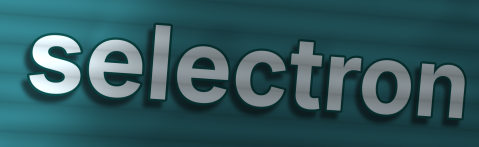
selectron